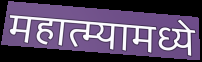
महात्म्यामध्ये